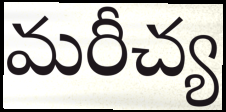
మరీచ్య